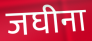
जघीना